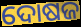
ଦୋଷଜ